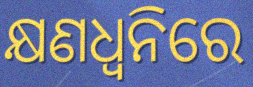
କ୍ଷଣଧ୍ୱନିରେ